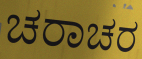
ಚರಾಚರ